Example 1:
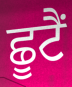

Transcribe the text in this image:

ਛੂਟੈਂ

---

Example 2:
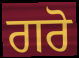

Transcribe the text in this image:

ਗਰੋ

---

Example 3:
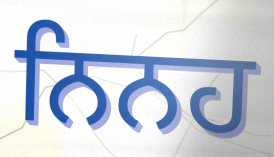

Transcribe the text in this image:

ਨਿਨਹ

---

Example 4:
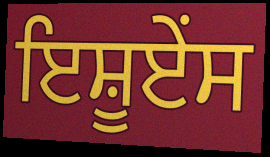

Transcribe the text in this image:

ਇਸ਼ੂਏਂਸ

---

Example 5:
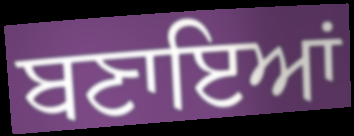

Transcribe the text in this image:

ਬਣਾਇਆਂ